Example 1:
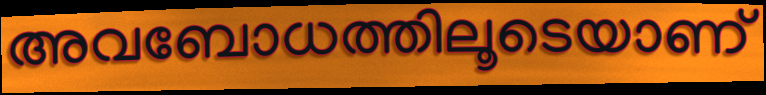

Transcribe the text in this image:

അവബോധത്തിലൂടെയാണ്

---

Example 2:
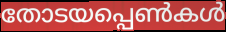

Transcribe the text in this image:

തോടയപ്പെൺകൾ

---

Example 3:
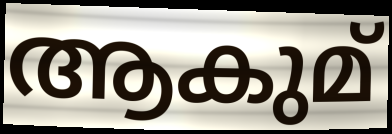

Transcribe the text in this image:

ആകുമ്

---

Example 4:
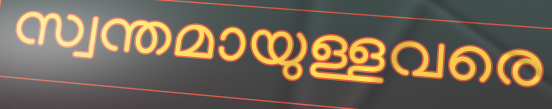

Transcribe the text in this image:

സ്വന്തമായുള്ളവരെ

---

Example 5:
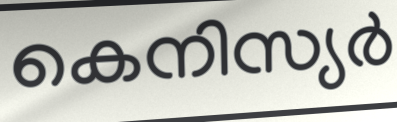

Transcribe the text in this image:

കെനിസ്യർ